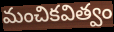
మంచికవిత్వం